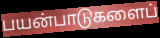
பயன்பாடுகளைப்